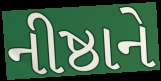
નીષ્ઠાને